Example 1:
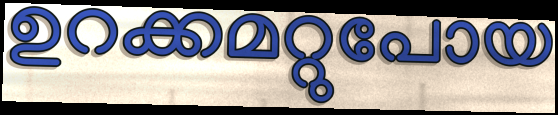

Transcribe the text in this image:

ഉറക്കമറ്റുപോയ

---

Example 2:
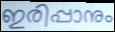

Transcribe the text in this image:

ഇരിപ്പാനും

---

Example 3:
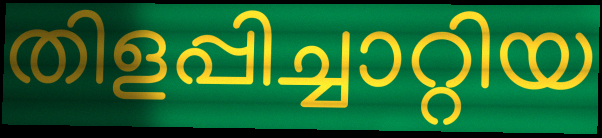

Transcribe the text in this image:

തിളപ്പിച്ചാറ്റിയ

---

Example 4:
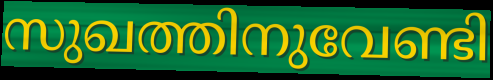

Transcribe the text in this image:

സുഖത്തിനുവേണ്ടി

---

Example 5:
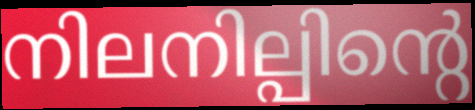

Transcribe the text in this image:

നിലനില്പിന്റെ